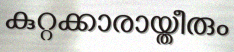
കുറ്റക്കാരായ്തീരും